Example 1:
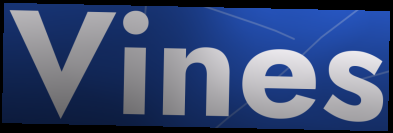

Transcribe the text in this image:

Vines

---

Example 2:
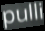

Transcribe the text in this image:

pulli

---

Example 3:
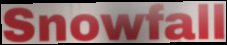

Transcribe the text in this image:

Snowfall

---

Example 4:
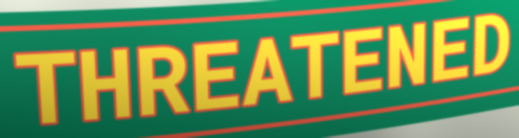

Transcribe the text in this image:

THREATENED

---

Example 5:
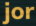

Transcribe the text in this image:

jor